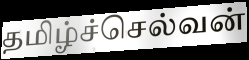
தமிழ்ச்செல்வன்